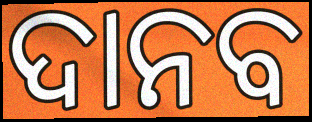
ଦାନବ